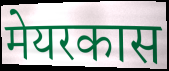
मेयरकास